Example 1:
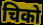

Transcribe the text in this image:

चिको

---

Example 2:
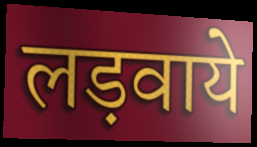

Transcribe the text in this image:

लड़वाये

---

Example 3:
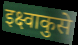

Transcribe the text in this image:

इक्ष्वाकुसे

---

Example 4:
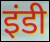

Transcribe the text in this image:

इंडी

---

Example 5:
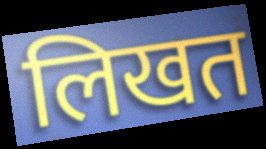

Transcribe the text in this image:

लिखत